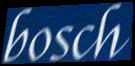
bosch